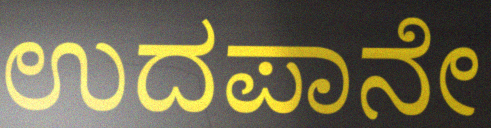
ಉದಪಾನೇ